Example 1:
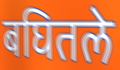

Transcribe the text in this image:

बघितले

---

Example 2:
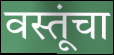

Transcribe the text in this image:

वस्तूंचा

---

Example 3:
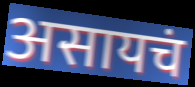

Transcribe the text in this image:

असायचं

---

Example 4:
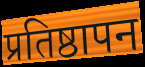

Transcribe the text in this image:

प्रतिष्ठापन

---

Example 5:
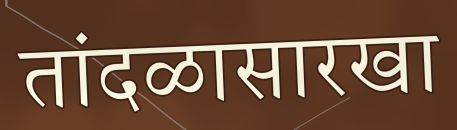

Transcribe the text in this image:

तांदळासारखा